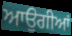
ਆਉਗੀਆਂ